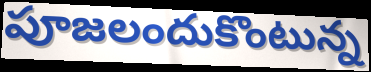
పూజలందుకొంటున్న